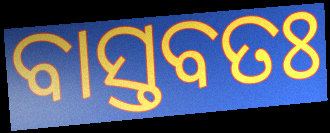
ବାସ୍ତବତଃ